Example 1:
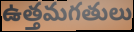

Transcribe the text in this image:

ఉత్తమగతులు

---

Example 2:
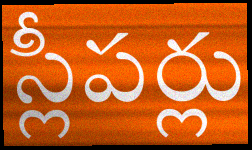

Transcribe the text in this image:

స్లీపర్లు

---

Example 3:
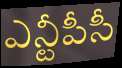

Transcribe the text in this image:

ఎన్టీపీసీ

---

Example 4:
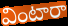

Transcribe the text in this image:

వింటారా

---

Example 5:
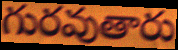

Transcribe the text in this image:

గురవుతారు